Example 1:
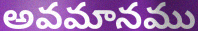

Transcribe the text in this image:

అవమానము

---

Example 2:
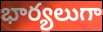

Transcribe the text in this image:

భార్యలుగా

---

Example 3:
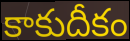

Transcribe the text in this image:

కాకుదీకం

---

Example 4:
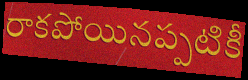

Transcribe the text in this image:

రాకపోయినప్పటికీ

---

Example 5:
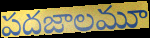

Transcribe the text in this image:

పదజాలమూ